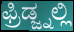
ಫ್ರಿಡ್ಜ್ನಲ್ಲಿ